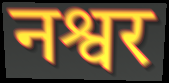
नश्वर